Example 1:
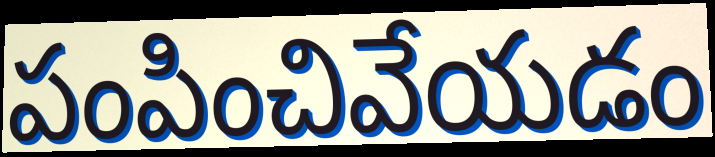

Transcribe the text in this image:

పంపించివేయడం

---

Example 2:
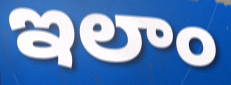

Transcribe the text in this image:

ఇలాం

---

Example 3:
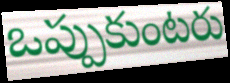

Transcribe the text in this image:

ఒప్పుకుంటరు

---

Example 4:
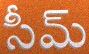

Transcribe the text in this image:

సీమ్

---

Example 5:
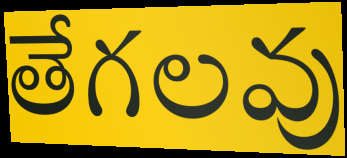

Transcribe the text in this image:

తేగలవు